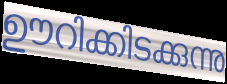
ഊറിക്കിടക്കുന്നു